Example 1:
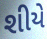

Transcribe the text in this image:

શીયે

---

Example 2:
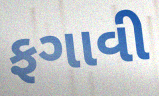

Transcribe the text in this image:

ફગાવી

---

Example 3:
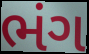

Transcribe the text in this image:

ભંગ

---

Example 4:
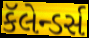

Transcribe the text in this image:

કૅલેન્ડર્સ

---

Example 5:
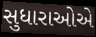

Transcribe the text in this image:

સુધારાઓએ